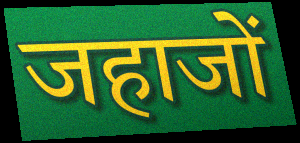
जहाजों